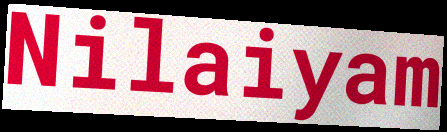
Nilaiyam